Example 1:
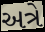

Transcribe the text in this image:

અત્રે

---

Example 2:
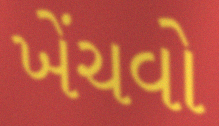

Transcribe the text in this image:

ખેંચવો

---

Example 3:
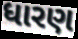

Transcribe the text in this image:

ધારણ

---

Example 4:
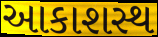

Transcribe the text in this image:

આકાશસ્થ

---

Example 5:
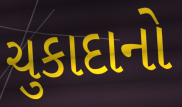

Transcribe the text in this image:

ચુકાદાનો